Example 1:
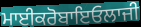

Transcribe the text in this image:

ਮਾਈਕਰੋਬਾਇਓਲਾਜੀ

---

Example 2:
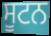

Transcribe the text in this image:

ਸੂਟਨ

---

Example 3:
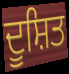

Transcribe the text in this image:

ਦੂਸ਼ਿਤ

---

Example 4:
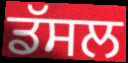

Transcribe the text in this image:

ਡੱਸਲ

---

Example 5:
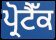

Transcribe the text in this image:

ਪ੍ਰੋਟੈੱਕ